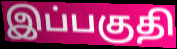
இப்பகுதி